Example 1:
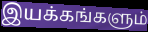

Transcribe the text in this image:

இயக்கங்களும்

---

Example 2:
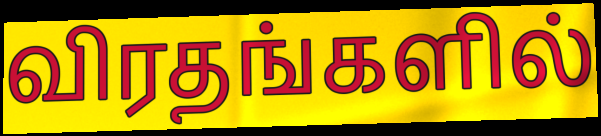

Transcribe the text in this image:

விரதங்களில்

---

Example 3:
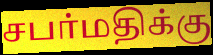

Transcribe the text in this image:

சபர்மதிக்கு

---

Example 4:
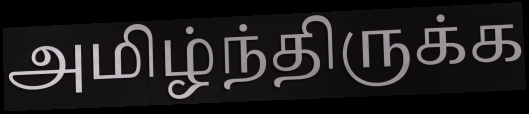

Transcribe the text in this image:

அமிழ்ந்திருக்க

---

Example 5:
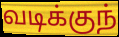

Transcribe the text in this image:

வடிக்குந்